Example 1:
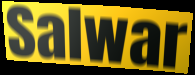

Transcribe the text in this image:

Salwar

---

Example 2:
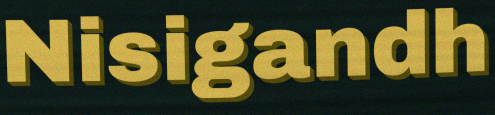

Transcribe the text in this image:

Nisigandh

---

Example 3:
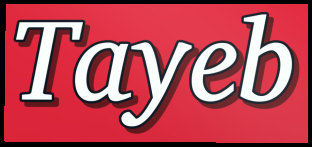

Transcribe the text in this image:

Tayeb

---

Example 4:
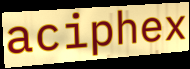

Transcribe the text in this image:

aciphex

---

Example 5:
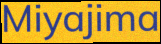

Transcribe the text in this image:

Miyajima